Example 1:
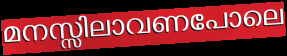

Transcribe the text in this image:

മനസ്സിലാവണപോലെ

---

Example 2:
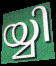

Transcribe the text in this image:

യ്യി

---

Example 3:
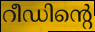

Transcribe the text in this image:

റീഡിന്റെ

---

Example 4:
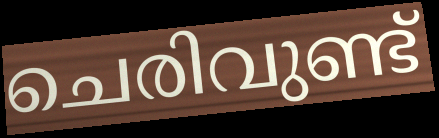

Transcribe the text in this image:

ചെരിവുണ്ട്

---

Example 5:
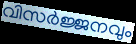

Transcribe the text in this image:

വിസർജ്ജനവും